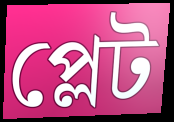
প্লেট